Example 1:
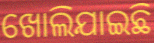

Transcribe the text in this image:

ଖୋଲିଯାଇଛି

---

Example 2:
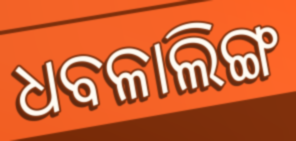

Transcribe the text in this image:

ଧବଳାଲିଙ୍ଗ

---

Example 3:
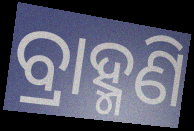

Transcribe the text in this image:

ବ୍ରାହ୍ମଣି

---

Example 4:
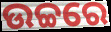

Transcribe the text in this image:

ଉଚ୍ଚରେ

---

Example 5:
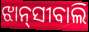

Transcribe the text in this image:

ଝାନ୍‌ସୀବାଲି